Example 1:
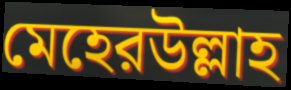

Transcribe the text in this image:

মেহেরউল্লাহ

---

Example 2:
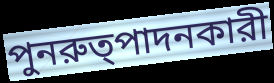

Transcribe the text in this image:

পুনরুত্পাদনকারী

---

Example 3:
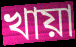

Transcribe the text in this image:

খায়া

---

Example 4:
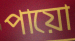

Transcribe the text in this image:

পায়ো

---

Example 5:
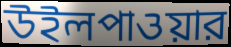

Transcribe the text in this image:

উইলপাওয়ার